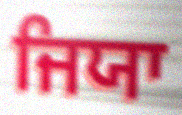
ਜਿਯਾ